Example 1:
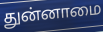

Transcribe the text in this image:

துன்னாமை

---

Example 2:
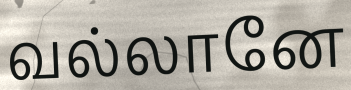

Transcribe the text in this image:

வல்லானே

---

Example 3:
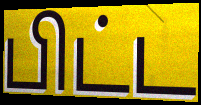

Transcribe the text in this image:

பிட்ட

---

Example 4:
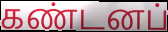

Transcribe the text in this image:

கண்டனப்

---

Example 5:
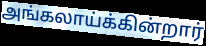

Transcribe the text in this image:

அங்கலாய்க்கின்றார்